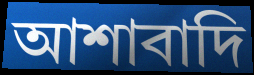
আশাবাদি